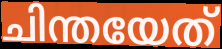
ചിന്തയേത്